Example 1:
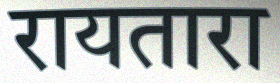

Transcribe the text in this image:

रायतारा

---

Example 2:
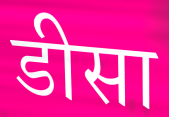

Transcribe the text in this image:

डीसा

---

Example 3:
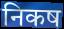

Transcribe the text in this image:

निकष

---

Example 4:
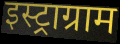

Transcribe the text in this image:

इस्ट्राग्राम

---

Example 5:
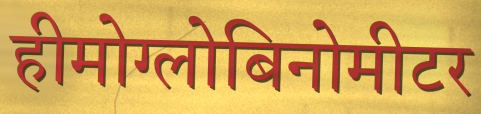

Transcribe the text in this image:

हीमोग्लोबिनोमीटर